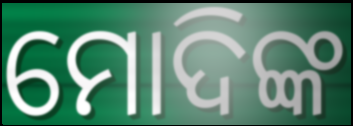
ମୋଦିଙ୍କ